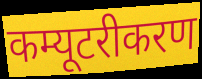
कम्यूटरीकरण